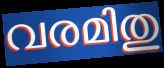
വരമിതു